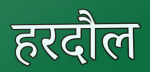
हरदौल